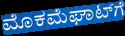
ಮೊಕಮೆಘಾಟ್‌ಗೆ